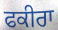
ਫਕੀਰਾ